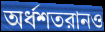
অর্ধশতরানও